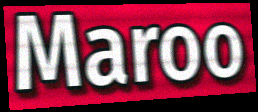
Maroo